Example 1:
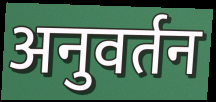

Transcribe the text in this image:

अनुवर्तन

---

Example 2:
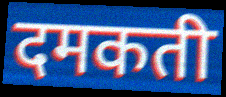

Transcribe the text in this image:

दमकती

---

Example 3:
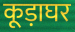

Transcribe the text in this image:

कूड़ाघर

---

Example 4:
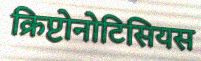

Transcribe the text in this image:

क्रिप्टोनोटिसियस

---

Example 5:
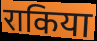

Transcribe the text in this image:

राकिया